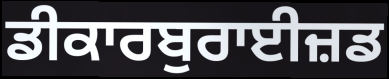
ਡੀਕਾਰਬੁਰਾਈਜ਼ਡ